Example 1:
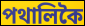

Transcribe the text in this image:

পথালিকৈ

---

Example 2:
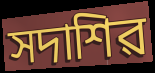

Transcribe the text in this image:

সদাশিৱ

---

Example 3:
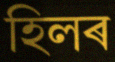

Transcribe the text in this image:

হিলৰ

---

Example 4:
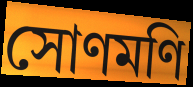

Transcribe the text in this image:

সোণমণি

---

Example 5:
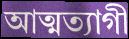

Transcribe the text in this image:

আত্মত্যাগী